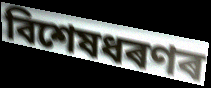
বিশেষধৰণৰ